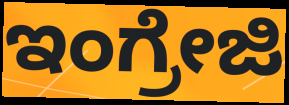
ಇಂಗ್ರೇಜಿ